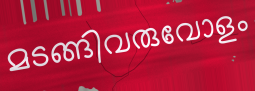
മടങ്ങിവരുവോളം